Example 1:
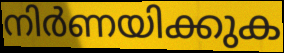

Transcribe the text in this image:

നിർണയിക്കുക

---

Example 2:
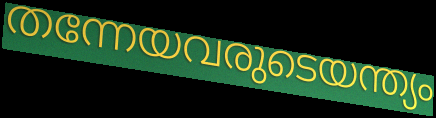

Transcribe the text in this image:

തന്നേയവരുടെയന്ത്യം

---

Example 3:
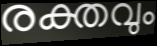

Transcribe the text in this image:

രക്തവും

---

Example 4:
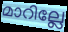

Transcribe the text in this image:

മാറില്ലേ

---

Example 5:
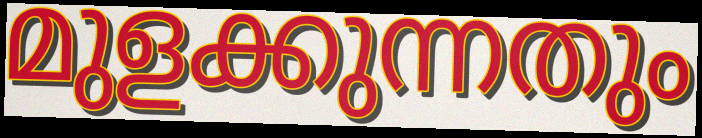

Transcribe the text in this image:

മുളക്കുന്നതും